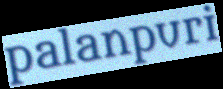
palanpuri